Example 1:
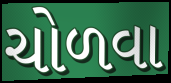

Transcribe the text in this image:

ચોળવા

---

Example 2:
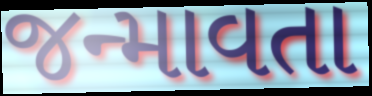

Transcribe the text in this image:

જન્માવતા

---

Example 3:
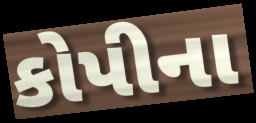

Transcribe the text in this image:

કોપીના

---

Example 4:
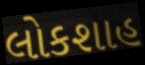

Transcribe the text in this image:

લોકશાહ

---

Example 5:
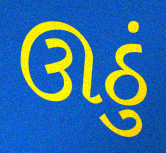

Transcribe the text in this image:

ઊઠું